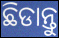
ଛିଡାନ୍ତୁ